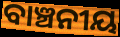
ବାଞ୍ଚନୀୟ